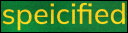
speicified